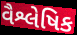
વૈશ્લેષિક